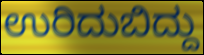
ಉರಿದುಬಿದ್ದು